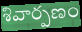
శివార్పణం